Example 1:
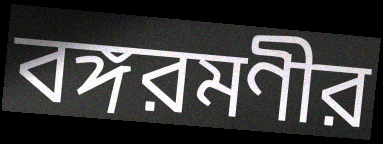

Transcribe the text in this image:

বঙ্গরমণীর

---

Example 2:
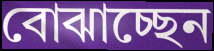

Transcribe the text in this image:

বোঝাচ্ছেন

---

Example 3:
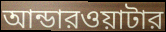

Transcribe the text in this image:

আন্ডারওয়াটার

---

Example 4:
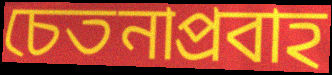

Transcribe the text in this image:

চেতনাপ্রবাহ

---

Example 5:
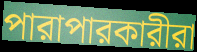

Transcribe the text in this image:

পারাপারকারীরা